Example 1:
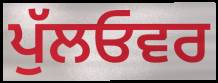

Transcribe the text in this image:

ਪੁੱਲਓਵਰ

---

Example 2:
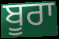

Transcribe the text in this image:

ਬੂਰਾ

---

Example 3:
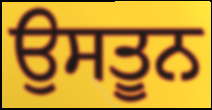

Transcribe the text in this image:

ਉਸਤੂਨ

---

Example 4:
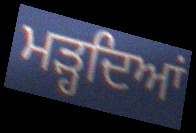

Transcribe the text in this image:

ਮੜ੍ਹਦਿਆਂ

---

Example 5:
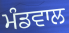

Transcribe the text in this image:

ਮੰਡਵਾਲ